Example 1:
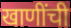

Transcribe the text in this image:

खाणींची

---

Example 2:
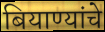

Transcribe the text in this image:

बियाण्यांचे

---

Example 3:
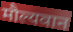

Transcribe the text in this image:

मौल्यवान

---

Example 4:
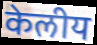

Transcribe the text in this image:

केलीय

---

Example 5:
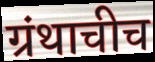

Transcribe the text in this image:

ग्रंथाचीच